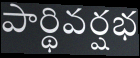
పార్థివర్షభ